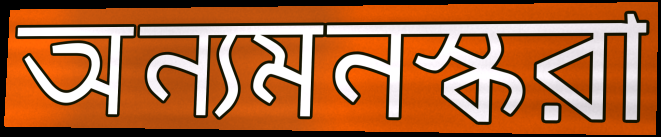
অন্যমনস্করা